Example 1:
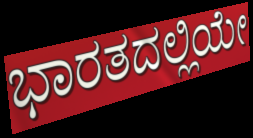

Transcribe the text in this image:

ಭಾರತದಲ್ಲಿಯೇ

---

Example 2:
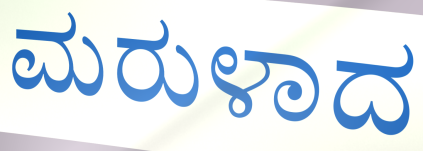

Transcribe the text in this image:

ಮರುಳಾದ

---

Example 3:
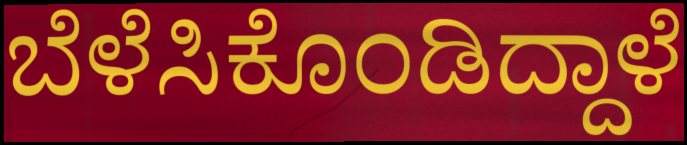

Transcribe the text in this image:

ಬೆಳೆಸಿಕೊಂಡಿದ್ದಾಳೆ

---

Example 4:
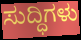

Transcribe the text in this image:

ಸುದ್ಧಿಗಳು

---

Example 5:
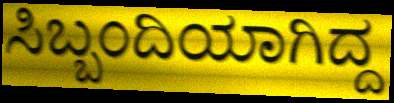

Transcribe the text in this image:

ಸಿಬ್ಬಂದಿಯಾಗಿದ್ದ